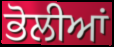
ਭੋਲੀਆਂ